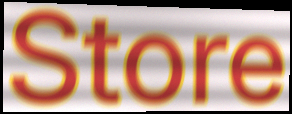
Store